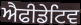
ਐਫੀਡੇਟਿਵ